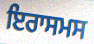
ਇਰਾਸਮਸ